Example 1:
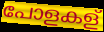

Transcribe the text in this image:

പോളകള്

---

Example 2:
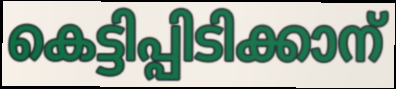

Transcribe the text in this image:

കെട്ടിപ്പിടിക്കാന്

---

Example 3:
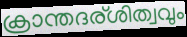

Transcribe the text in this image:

ക്രാന്തദര്ശിത്വവും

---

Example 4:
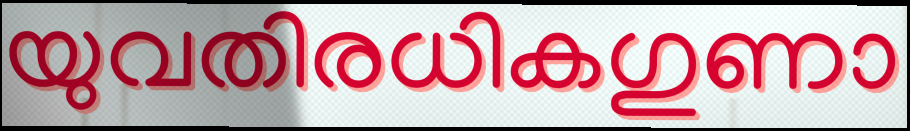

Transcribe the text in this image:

യുവതിരധികഗുണാ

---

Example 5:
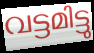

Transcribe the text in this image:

വട്ടമിട്ടു